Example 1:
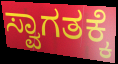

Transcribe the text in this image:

ಸ್ವಾಗತಕ್ಕೆ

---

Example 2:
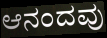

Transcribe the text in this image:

ಆನಂದವು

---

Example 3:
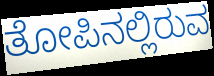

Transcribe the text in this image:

ತೋಪಿನಲ್ಲಿರುವ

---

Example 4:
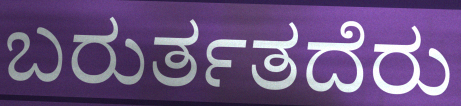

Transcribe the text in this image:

ಬರುರ್ತತದೆರು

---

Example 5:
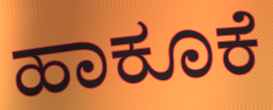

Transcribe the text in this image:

ಹಾಕೂಕೆ